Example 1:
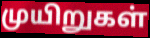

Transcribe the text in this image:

முயிறுகள்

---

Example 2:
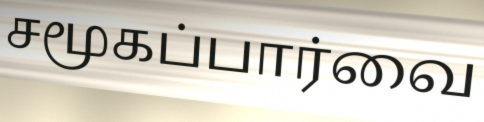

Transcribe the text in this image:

சமூகப்பார்வை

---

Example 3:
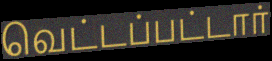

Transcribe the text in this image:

வெட்டப்பட்டார்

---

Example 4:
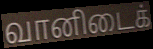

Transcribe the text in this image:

வானிடைக்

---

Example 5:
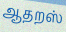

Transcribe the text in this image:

ஆதறஸ்